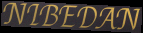
NIBEDAN